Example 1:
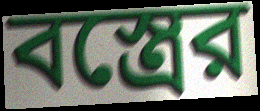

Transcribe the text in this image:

বস্ত্রের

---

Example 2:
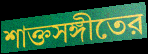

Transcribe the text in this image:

শাক্তসঙ্গীতের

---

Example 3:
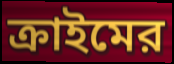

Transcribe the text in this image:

ক্রাইমের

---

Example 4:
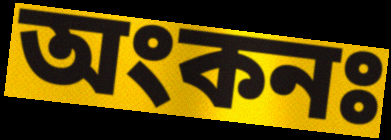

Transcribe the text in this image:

অংকনঃ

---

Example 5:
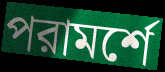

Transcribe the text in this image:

পরামর্শে